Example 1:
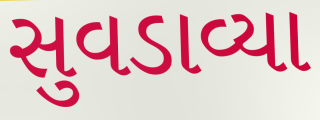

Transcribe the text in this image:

સુવડાવ્યા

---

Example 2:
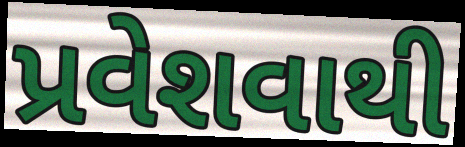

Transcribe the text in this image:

પ્રવેશવાથી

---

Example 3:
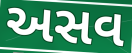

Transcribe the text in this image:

અસવ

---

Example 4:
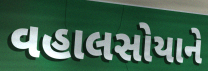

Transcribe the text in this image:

વહાલસોયાને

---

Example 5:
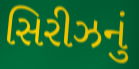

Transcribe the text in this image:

સિરીઝનું